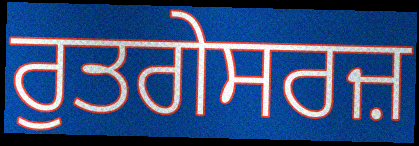
ਰੁਤਗੇਸਰਜ਼